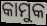
କାମୁକ